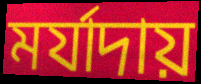
মর্যাদায়